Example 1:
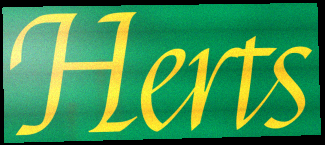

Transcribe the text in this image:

Herts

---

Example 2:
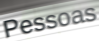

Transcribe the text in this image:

Pessoas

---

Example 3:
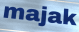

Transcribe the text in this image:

majak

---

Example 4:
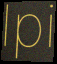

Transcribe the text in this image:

lpi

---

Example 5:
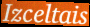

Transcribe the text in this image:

Izceltais